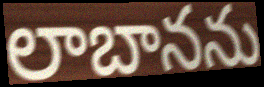
లాబానను